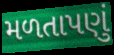
મળતાપણું